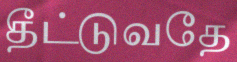
தீட்டுவதே